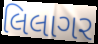
લિલાગર